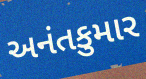
અનંતકુમાર